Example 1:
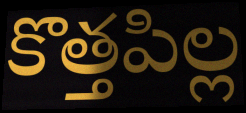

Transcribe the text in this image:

కొత్తపిల్ల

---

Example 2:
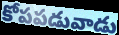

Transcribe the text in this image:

కోపపడువాడు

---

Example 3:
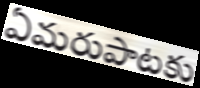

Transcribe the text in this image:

ఏమరుపాటకు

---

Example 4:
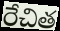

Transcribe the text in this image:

రేచిత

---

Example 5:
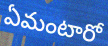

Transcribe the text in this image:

ఏమంటారో